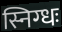
स्निग्धः